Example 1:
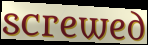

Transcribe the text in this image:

screwed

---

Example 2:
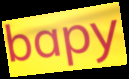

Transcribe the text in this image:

bapy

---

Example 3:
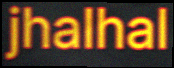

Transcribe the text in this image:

jhalhal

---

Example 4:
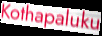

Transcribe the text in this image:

Kothapaluku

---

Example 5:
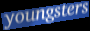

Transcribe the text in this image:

youngsters